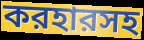
করহারসহ